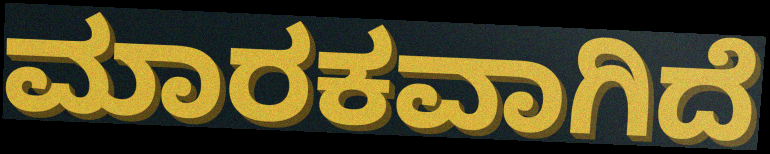
ಮಾರಕವಾಗಿದೆ